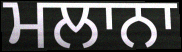
ਮਲਾਨਾ